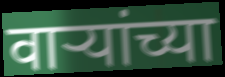
वाऱ्यांच्या